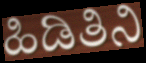
ಹಿಡಿತಿನಿ